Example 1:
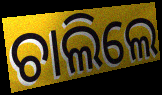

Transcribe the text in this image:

ଚାଲିଲେ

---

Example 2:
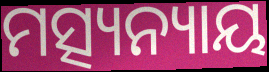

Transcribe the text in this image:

ମତ୍ସ୍ୟନ୍ୟାୟ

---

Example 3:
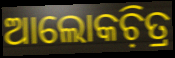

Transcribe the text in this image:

ଆଲୋକଚ଼ିତ୍ର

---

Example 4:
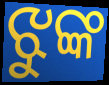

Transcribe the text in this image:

ଝୁଙ୍କ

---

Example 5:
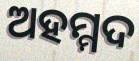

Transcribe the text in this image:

ଅହମ୍ମଦ